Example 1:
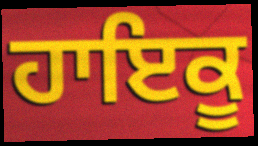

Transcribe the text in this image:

ਹਾਇਕੂ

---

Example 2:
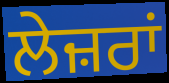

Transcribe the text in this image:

ਲੇਜ਼ਰਾਂ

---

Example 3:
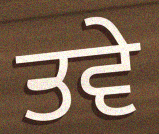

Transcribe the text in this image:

ਤਵੇ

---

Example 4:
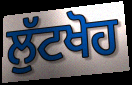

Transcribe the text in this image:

ਲੁੱਟਖੋਹ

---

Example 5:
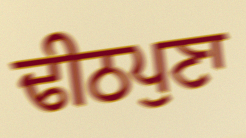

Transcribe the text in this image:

ਢੀਠਪੁਣਾ